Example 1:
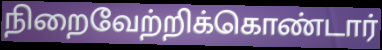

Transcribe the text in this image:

நிறைவேற்றிக்கொண்டார்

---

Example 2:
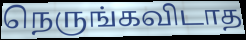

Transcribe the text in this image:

நெருங்கவிடாத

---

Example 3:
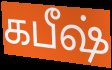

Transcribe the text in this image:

கபீஷ்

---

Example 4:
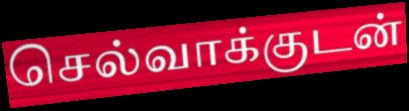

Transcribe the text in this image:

செல்வாக்குடன்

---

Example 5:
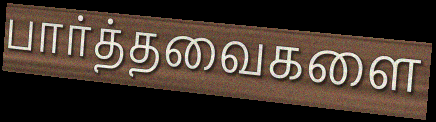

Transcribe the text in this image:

பார்த்தவைகளை